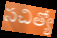
సచిత్యో